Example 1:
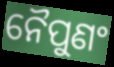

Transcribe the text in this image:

ନୈପୁଣଂ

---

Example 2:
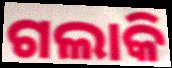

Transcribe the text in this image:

ଗଲାକି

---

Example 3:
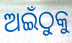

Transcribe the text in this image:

ଅଇଁଠୁକୁ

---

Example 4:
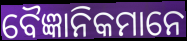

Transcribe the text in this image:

ବୈଜ୍ଞାନିକମାନେ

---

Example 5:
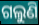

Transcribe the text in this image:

ଗଲୁଣି